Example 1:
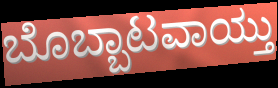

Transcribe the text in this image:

ಬೊಬ್ಬಾಟವಾಯ್ತು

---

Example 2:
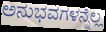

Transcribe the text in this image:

ಅನುಭವಗಳನ್ನೆಲ್ಲ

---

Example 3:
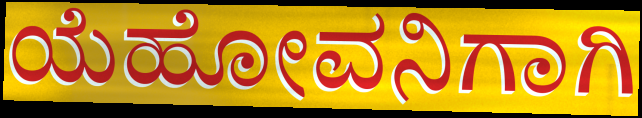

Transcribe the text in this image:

ಯೆಹೋವನಿಗಾಗಿ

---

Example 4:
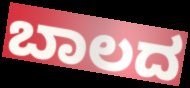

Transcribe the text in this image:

ಬಾಲದ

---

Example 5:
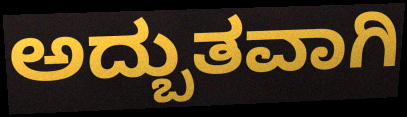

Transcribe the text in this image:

ಅದ್ಬುತವಾಗಿ